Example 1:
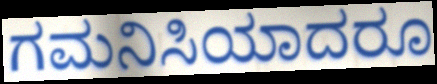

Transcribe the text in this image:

ಗಮನಿಸಿಯಾದರೂ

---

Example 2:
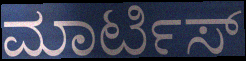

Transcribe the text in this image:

ಮಾರ್ಟಿಸ್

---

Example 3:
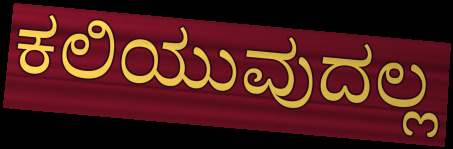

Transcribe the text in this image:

ಕಲಿಯುವುದಲ್ಲ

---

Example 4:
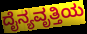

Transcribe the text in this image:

ದೈನ್ಯವೃತ್ತಿಯ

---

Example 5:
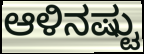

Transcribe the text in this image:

ಆಳಿನಷ್ಟು